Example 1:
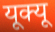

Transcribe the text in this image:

यूक्यू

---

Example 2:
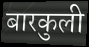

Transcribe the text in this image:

बारकुली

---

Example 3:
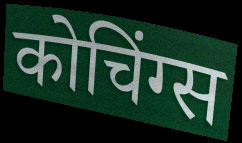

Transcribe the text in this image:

कोचिंग्स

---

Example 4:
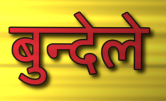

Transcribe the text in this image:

बुन्देले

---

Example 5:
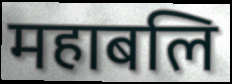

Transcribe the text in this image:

महाबलि